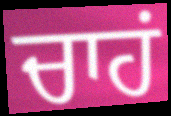
ਚਾਹਂ